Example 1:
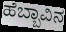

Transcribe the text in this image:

ಹೆಬ್ಬಾವಿನ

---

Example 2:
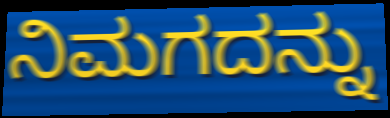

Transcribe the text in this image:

ನಿಮಗದನ್ನು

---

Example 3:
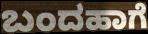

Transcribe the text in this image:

ಬಂದಹಾಗೆ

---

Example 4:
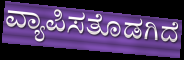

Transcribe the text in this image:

ವ್ಯಾಪಿಸತೊಡಗಿದೆ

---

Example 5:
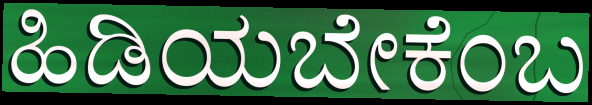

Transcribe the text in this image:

ಹಿಡಿಯಬೇಕೆಂಬ